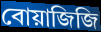
বোয়াজিজি